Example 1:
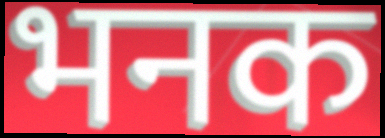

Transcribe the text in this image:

भनक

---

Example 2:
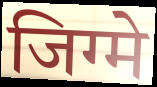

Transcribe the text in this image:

जिग्मे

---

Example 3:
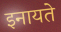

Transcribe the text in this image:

इनायते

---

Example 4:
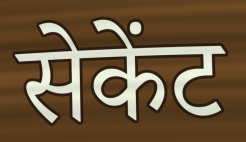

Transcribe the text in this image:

सेकेंट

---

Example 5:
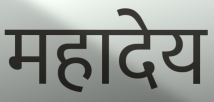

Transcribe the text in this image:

महादेय